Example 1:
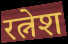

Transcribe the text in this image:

रत्नेश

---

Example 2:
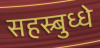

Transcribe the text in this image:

सहस्र्बुध्धे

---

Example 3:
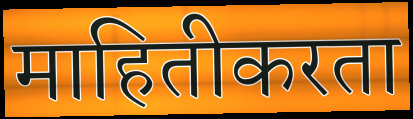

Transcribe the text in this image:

माहितीकरता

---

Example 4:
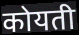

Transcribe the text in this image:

कोयती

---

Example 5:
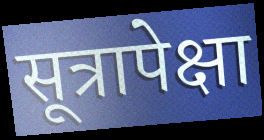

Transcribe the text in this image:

सूत्रापेक्षा